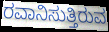
ರವಾನಿಸುತ್ತಿರುವ